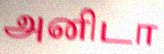
அனிடா